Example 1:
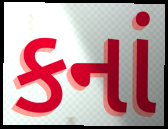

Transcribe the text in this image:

કનાં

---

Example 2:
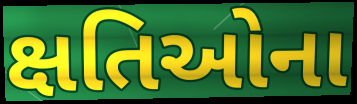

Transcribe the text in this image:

ક્ષતિઓના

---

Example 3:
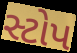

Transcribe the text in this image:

સ્ટોપ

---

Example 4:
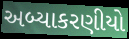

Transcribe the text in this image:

અબ્યાકરણીયો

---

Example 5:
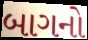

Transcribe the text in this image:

બાગનો